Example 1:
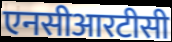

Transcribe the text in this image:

एनसीआरटीसी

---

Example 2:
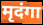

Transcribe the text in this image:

मृदंगा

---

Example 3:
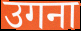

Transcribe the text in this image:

उगना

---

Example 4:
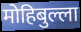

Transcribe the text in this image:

मोहिबुल्ला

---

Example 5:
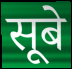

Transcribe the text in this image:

सूबे